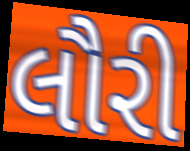
લૌરી